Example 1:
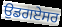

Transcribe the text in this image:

ਉਡਗਏਸਰ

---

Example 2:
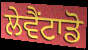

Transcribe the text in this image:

ਲੇਵੈਂਟਾਡੋ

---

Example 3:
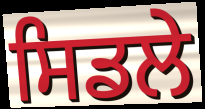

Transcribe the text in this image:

ਸਿਡਲੇ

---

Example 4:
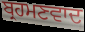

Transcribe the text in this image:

ਬ੍ਰਹਮਣਵਾਦ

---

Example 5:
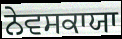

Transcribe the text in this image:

ਨੇਵਸਕਾਯਾ